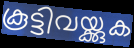
കൂട്ടിവയ്ക്കുക